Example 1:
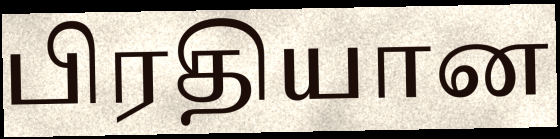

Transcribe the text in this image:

பிரதியான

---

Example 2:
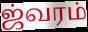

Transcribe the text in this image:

ஜ்வரம்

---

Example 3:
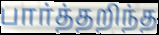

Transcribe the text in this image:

பார்த்தறிந்த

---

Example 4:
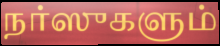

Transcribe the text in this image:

நர்ஸுகளும்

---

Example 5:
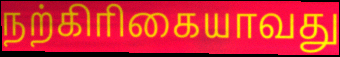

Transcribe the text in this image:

நற்கிரிகையாவது